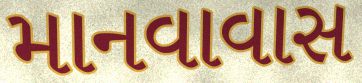
માનવાવાસ